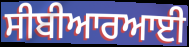
ਸੀਬੀਆਰਆਈ